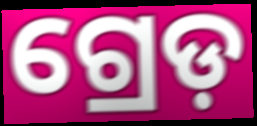
ଗ୍ରେଡ଼